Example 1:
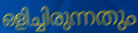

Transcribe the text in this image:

ഒളിച്ചിരുന്നതും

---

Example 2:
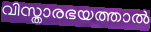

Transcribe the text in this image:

വിസ്താരഭയത്താൽ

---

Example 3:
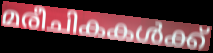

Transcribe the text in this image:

മരീചികകൾക്ക്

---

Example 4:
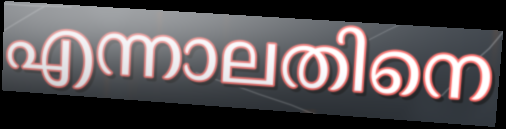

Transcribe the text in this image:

എന്നാലതിനെ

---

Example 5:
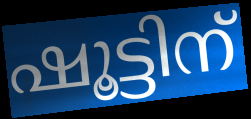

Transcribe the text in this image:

ഷൂട്ടിന്